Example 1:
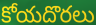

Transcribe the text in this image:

కోయదొరలు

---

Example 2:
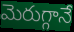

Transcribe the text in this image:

మెరుగ్గానే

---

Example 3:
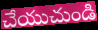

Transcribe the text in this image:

చేయుచుండి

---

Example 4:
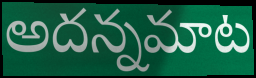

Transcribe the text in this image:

అదన్నమాట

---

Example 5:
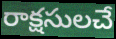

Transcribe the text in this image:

రాక్షసులచే